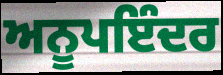
ਅਨੂਪਇੰਦਰ